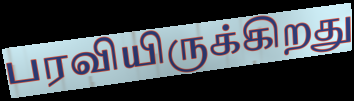
பரவியிருக்கிறது